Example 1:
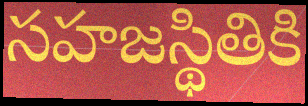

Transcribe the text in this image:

సహజస్థితికి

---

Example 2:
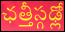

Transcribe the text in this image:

ఛత్తీస్గఢ్లో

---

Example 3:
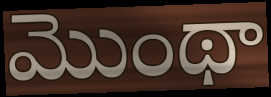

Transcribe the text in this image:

మొంథా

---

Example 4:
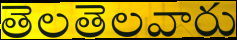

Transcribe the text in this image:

తెలతెలవారు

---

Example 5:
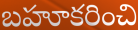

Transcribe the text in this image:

బహూకరించి